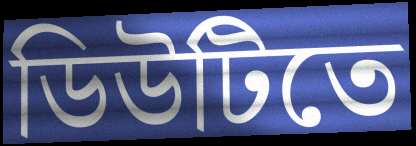
ডিউটিতে